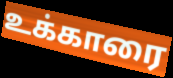
உக்காரை